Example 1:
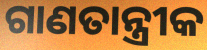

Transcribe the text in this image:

ଗାଣତାନ୍ତ୍ରୀକ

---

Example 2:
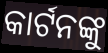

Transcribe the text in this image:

କାର୍ଟନଙ୍କୁ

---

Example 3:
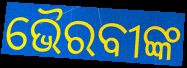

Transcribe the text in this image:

ଭୈରବୀଙ୍କ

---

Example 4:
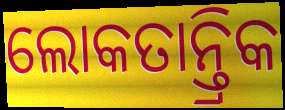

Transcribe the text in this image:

ଲୋକତାନ୍ତ୍ରିକ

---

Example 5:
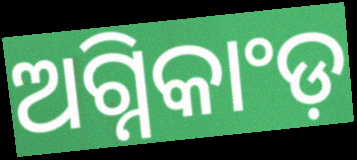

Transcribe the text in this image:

ଅଗ୍ନିକାଂଡ଼